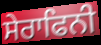
ਸੇਰਾਫਿਨੀ